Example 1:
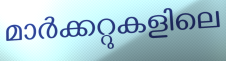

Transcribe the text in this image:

മാർക്കറ്റുകളിലെ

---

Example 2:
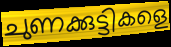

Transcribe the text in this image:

ചുണക്കുട്ടികളെ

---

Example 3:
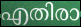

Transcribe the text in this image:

എതിരാ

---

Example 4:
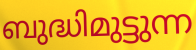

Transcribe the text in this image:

ബുദ്ധിമുട്ടുന്ന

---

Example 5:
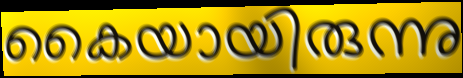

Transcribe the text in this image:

കൈയായിരുന്നു